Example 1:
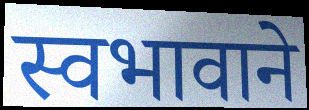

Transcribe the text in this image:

स्वभावाने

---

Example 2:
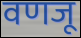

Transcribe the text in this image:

वणजू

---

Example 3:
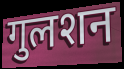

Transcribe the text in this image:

गुलशन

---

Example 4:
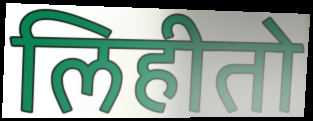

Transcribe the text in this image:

लिहीतो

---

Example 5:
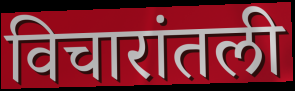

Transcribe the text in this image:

विचारांतली